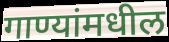
गाण्यांमधील